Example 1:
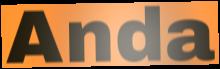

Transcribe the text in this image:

Anda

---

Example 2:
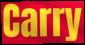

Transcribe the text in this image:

Carry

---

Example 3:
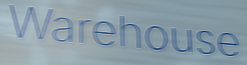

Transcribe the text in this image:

Warehouse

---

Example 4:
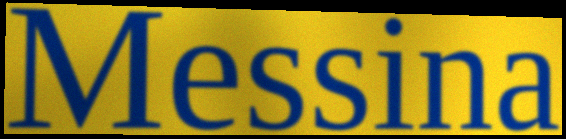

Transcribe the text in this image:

Messina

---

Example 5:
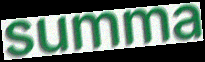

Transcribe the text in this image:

summa